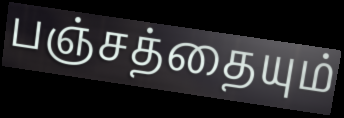
பஞ்சத்தையும்